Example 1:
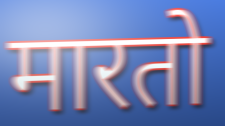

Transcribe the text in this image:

मारतो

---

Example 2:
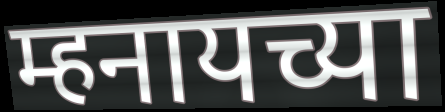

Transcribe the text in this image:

म्हनायच्या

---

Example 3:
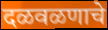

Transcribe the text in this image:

दळवळणाचे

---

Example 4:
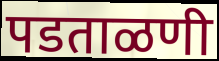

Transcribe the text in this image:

पडताळणी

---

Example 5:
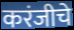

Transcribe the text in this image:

करंजीचे